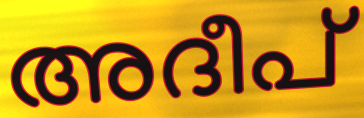
അദീപ്